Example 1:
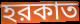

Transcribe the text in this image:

হরকাত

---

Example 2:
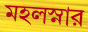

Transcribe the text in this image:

মহলস্নার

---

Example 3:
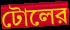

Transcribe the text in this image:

টোলের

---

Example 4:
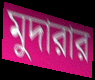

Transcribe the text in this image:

মুদারার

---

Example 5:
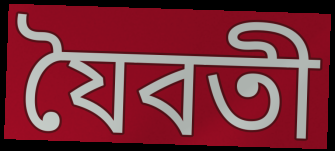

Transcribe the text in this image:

যৈবতী